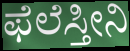
ಫೆಲೆಸ್ತೀನಿ